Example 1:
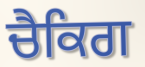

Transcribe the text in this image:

ਚੈਕਿਗ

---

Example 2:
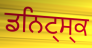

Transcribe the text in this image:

ਡਨਿਟ੍ਸ੍ਕ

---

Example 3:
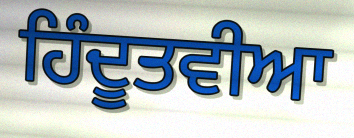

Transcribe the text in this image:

ਹਿੰਦੂਤਵੀਆ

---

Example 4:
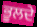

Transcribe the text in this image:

ਭੂਲਦੇ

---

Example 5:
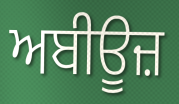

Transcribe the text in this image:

ਅਬੀਊਜ਼